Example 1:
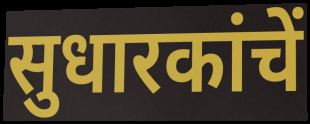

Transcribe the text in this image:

सुधारकांचें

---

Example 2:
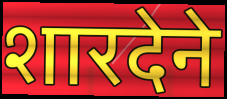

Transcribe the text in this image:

शारदेने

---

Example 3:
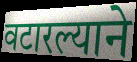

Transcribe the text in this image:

वटारल्याने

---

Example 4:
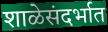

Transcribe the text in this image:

शाळेसंदर्भात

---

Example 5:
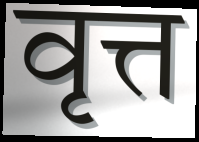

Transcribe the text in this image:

वृत्त